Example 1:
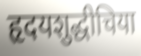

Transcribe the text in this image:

हृदयशुद्धीचिया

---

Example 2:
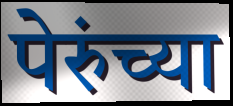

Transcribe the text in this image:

पेरुंच्या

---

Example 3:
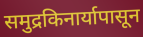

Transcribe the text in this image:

समुद्रकिनार्यापासून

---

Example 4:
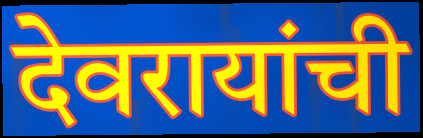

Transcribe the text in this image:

देवरायांची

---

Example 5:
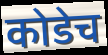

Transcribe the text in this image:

कोडेच